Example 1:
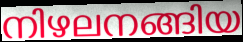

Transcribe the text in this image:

നിഴലനങ്ങിയ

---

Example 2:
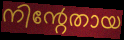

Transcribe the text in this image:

നിന്റേതായ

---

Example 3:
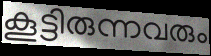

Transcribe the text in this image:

കൂട്ടിരുന്നവരും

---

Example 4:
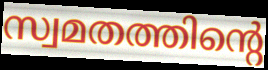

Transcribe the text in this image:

സ്വമതത്തിന്റെ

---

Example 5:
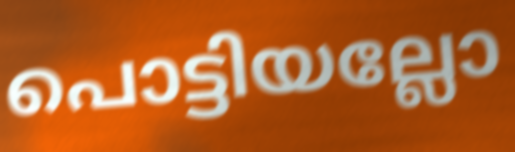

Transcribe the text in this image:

പൊട്ടിയല്ലോ